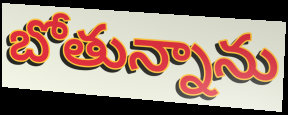
బోతున్నాను